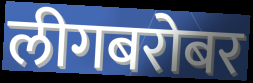
लीगबरोबर